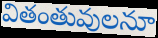
వితంతువులనూ